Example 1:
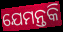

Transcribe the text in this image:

ଯେମନ୍ତକି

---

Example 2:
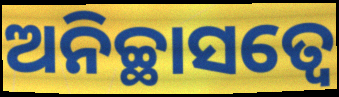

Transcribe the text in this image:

ଅନିଚ୍ଛାସତ୍ୱେ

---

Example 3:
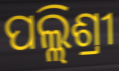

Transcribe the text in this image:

ପଲ୍ଲିଶ୍ରୀ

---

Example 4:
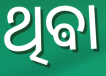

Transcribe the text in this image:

ଥିଵା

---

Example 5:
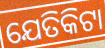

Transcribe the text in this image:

ଯେତିକିଟା